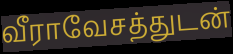
வீராவேசத்துடன்